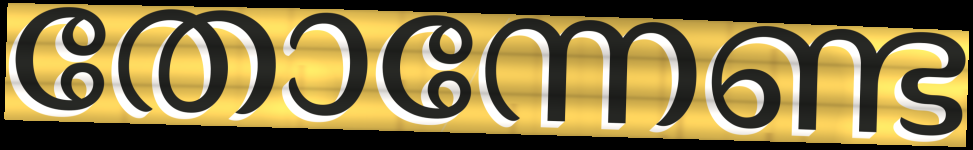
തോന്നേണ്ട